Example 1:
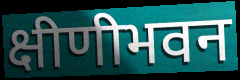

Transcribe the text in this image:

क्षीणीभवन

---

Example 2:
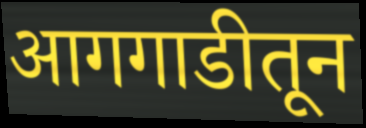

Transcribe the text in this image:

आगगाडीतून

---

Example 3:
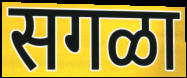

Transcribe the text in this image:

सगळा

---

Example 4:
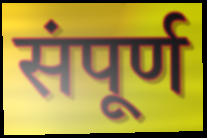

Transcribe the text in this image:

संपूर्ण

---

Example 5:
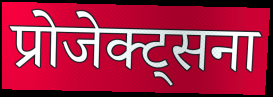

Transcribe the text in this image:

प्रोजेक्ट्सना